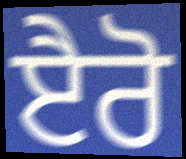
ੲੈਰੋ